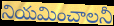
నియమించాలనీ